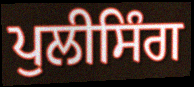
ਪੁਲੀਸਿੰਗ